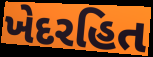
ખેદરહિત